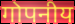
गोपनीय